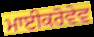
ਮਾਈਕਰੋਵੇਵ